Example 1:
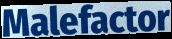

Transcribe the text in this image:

Malefactor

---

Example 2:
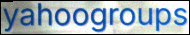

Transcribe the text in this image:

yahoogroups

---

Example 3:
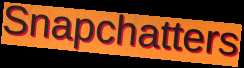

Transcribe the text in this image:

Snapchatters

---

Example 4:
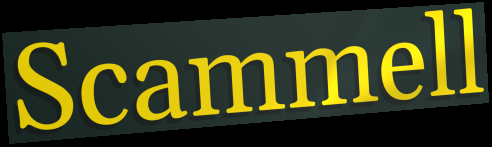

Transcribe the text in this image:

Scammell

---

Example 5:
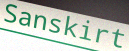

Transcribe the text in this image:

Sanskirt